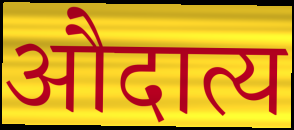
औदात्य